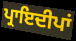
ਪ੍ਰਾਇਦੀਪਾਂ